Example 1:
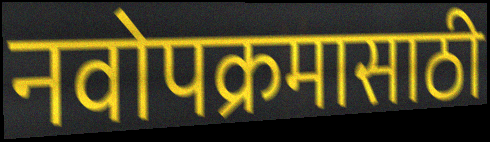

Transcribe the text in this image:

नवोपक्रमासाठी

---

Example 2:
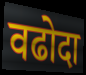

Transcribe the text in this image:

वढोदा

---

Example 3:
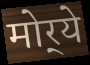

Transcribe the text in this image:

मोर्ये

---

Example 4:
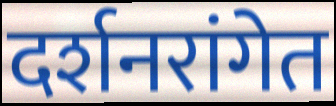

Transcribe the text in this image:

दर्शनरांगेत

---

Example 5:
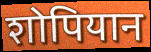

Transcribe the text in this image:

शोपियान